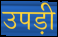
उपड़ी